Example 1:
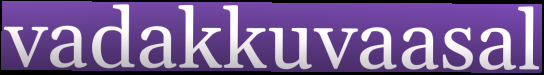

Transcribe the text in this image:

vadakkuvaasal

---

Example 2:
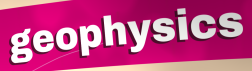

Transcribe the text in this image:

geophysics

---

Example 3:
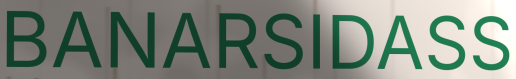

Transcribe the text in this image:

BANARSIDASS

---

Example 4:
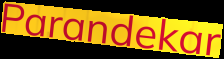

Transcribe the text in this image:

Parandekar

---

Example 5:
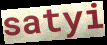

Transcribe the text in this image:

satyi